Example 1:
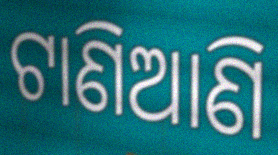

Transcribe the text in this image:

ଟାଣିଆଣି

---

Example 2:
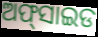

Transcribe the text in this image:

ଅଫ୍‍ସାଇଡ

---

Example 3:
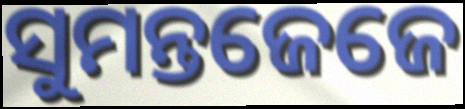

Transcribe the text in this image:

ସୁମନ୍ତଜେଜେ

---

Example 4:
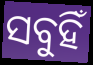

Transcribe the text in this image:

ସବୁହିଁ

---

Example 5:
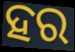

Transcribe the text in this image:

ହର